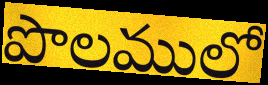
పొలములో